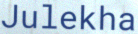
Julekha